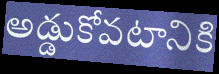
అడ్డుకోవటానికి